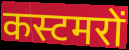
कस्टमरों